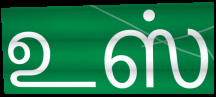
உஸ்